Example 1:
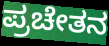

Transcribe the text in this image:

ಪ್ರಚೇತನ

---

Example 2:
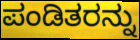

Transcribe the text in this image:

ಪಂಡಿತರನ್ನು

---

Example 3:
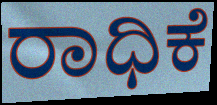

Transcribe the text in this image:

ರಾಧಿಕೆ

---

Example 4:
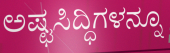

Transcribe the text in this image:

ಅಷ್ಟಸಿದ್ಧಿಗಳನ್ನೂ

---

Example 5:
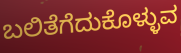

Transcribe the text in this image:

ಬಲಿತೆಗೆದುಕೊಳ್ಳುವ